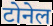
टोनेल